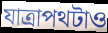
যাত্রাপথটাও